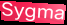
Sygma